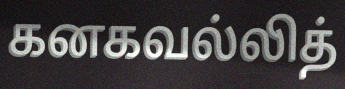
கனகவல்லித்